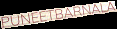
PUNEETBARNALA